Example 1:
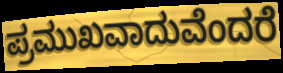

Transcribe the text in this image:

ಪ್ರಮುಖವಾದುವೆಂದರೆ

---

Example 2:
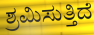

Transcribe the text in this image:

ಶ್ರಮಿಸುತ್ತಿದೆ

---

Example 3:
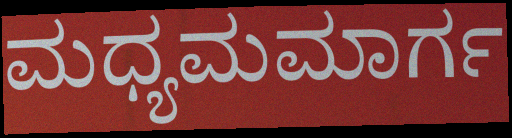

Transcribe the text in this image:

ಮಧ್ಯಮಮಾರ್ಗ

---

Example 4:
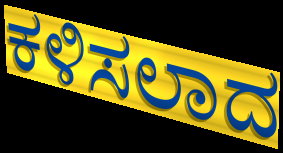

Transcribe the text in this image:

ಕಳಿಸಲಾದ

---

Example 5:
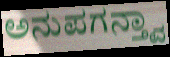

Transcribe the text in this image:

ಅನುಪಗನ್ತ್ವಾ